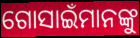
ଗୋସାଇଁମାନଙ୍କୁ